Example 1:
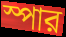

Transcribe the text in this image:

স্পার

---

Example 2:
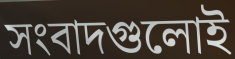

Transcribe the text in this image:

সংবাদগুলোই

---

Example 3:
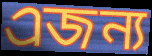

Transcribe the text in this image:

এজন্য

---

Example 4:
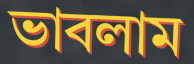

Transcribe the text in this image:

ভাবলাম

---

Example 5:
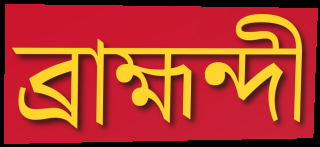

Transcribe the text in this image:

ব্রাহ্মন্দী